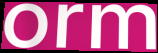
orm